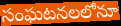
సంఘటనలలోనూ